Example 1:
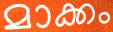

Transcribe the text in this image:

മാക്കം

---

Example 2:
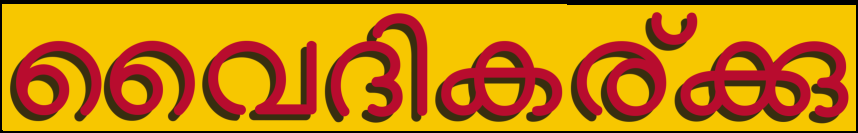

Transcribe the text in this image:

വൈദികര്ക്കു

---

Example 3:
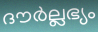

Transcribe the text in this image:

ദൗർല്ലഭ്യം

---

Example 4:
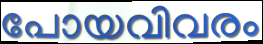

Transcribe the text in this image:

പോയവിവരം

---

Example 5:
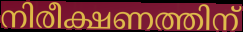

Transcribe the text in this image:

നിരീക്ഷണത്തിന്